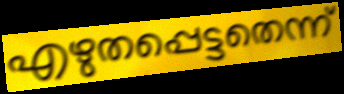
എഴുതപ്പെട്ടതെന്ന്